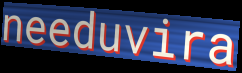
needuvira